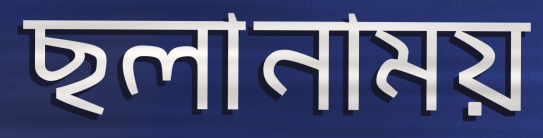
ছলানাময়